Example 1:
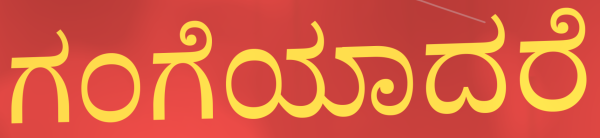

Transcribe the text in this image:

ಗಂಗೆಯಾದರೆ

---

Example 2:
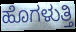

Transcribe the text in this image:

ಹೊಗಳುತ್ತಿ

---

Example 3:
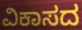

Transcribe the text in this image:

ವಿಕಾಸದ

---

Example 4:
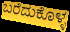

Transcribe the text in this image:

ಬರೆದುಕೊಳ್ಳ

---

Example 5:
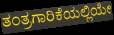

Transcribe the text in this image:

ತಂತ್ರಗಾರಿಕೆಯಲ್ಲಿಯೇ